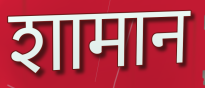
शामान